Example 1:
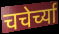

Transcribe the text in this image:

चचेर्च्या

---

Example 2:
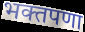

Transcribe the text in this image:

भक्तपणा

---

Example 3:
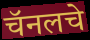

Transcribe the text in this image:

चॅनलचे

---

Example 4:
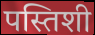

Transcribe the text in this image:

पस्तिशी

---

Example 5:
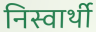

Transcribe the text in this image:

निस्वार्थी